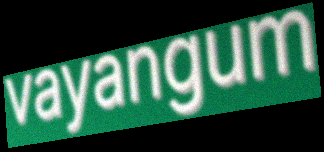
vayangum